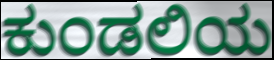
ಕುಂಡಲಿಯ